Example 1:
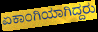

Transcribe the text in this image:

ಏಕಾಂಗಿಯಾಗಿದ್ದರು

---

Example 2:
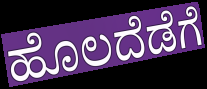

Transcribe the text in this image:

ಹೊಲದೆಡೆಗೆ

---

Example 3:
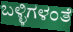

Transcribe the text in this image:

ಬಳ್ಳಿಗಳಂತೆ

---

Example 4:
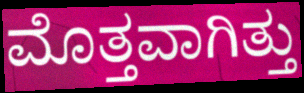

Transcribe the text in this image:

ಮೊತ್ತವಾಗಿತ್ತು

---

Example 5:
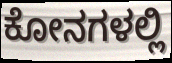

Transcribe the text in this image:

ಕೋನಗಳಲ್ಲಿ